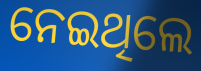
ନେଇଥିଲେ